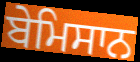
ਬੇਮਿਸਾਨ